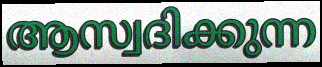
ആസ്വദിക്കുന്ന